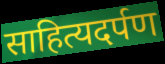
साहित्यदर्पण